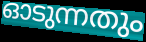
ഓടുന്നതും